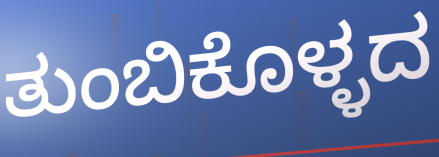
ತುಂಬಿಕೊಳ್ಳದ